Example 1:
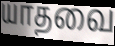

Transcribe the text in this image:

யாதவை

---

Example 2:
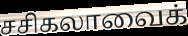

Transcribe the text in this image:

சசிகலாவைக்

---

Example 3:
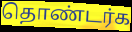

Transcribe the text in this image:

தொண்டர்க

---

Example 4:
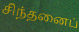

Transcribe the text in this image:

சிந்தனைப்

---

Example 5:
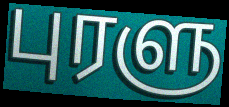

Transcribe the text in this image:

புரளு